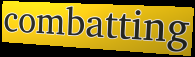
combatting